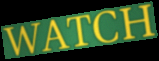
WATCH